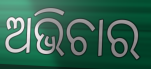
ଅଭିଚାର